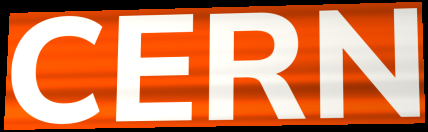
CERN